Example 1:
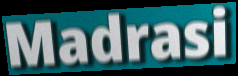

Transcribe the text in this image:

Madrasi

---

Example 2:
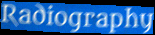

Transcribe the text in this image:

Radiography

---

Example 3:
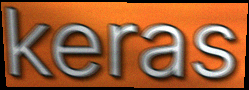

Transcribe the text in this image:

keras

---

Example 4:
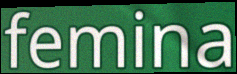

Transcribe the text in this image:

femina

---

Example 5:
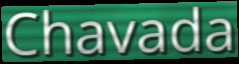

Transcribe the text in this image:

Chavada